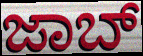
ಜಾಬ್